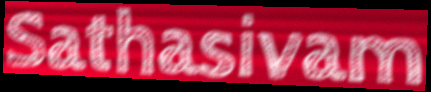
Sathasivam